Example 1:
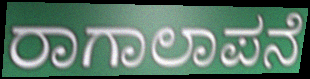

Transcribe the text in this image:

ರಾಗಾಲಾಪನೆ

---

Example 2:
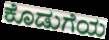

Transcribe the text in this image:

ಕೊಡುಗೆಯ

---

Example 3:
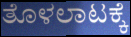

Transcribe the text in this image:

ತೊಳಲಾಟಕ್ಕೆ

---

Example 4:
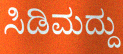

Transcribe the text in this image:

ಸಿಡಿಮದ್ದು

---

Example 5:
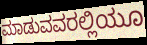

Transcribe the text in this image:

ಮಾಡುವವರಲ್ಲಿಯೂ